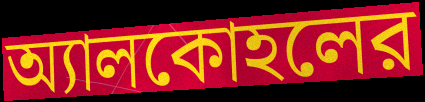
অ্যালকোহলের